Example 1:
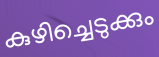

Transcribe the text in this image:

കുഴിച്ചെടുക്കും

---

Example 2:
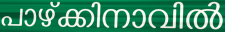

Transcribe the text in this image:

പാഴ്ക്കിനാവിൽ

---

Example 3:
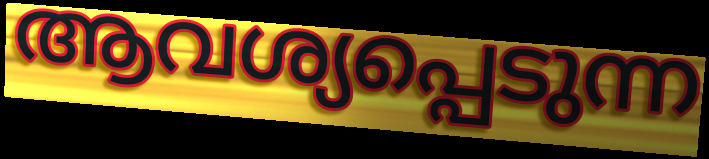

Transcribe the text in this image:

ആവശ്യപ്പെടുന്ന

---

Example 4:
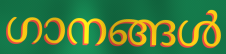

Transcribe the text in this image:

ഗാനങ്ങൾ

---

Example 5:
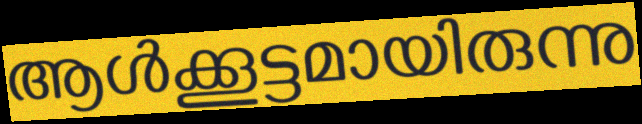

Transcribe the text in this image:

ആൾക്കൂട്ടമായിരുന്നു